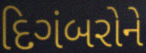
દિગંબરોને